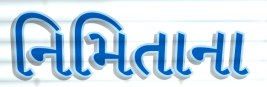
નિમિતાના